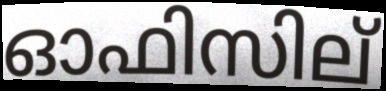
ഓഫിസില്